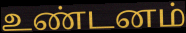
உண்டனம்